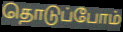
தொடுப்போம்